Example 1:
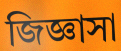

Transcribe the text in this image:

জিজ্ঞাসা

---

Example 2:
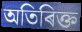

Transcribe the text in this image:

অতিৰিক্ত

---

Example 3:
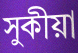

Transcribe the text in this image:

সুকীয়া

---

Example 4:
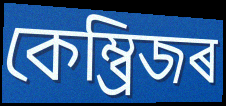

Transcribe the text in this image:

কেম্ব্ৰিজৰ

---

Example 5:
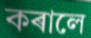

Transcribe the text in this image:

কৰালে